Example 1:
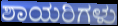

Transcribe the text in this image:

ಶಾಯರಿಗಳು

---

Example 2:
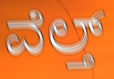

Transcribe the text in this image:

ವೆಲ್ತ್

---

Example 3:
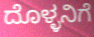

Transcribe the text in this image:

ದೊಳ್ಳನಿಗೆ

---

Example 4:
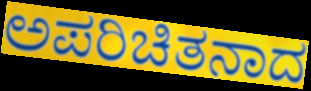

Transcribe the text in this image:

ಅಪರಿಚಿತನಾದ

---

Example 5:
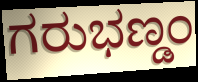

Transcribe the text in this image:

ಗರುಭಣ್ಡಂ